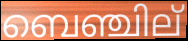
ബെഞ്ചില്